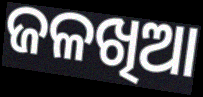
ଜଳଖିଆ